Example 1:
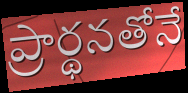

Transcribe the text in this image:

ప్రార్థనతోనే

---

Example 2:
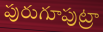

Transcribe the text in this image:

పురుగూపుట్రా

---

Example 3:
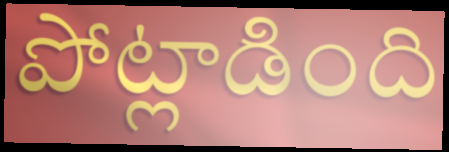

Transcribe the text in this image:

పోట్లాడింది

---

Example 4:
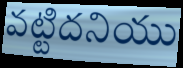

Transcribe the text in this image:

వట్టిదనియు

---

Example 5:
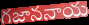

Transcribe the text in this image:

గజాననాయ